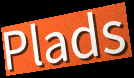
Plads